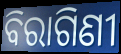
ବିରାଗିଣୀ